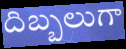
దిబ్బలుగా